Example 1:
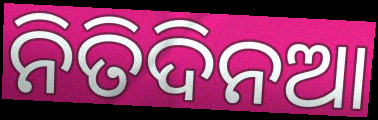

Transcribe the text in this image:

ନିତିଦିନଆ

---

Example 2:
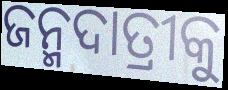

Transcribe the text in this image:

ଜନ୍ମଦାତ୍ରୀକୁ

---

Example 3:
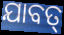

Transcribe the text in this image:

ଯାବତ୍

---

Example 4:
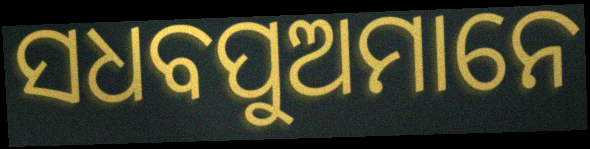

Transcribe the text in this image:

ସଧବପୁଅମାନେ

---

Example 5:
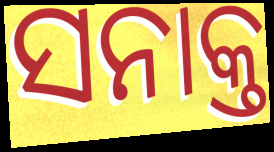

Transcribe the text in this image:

ସନାକ୍ତ